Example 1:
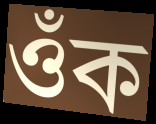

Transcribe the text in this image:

ওঁক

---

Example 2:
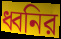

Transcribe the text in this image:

ধ্বনির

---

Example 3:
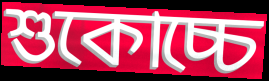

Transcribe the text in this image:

শুকোচ্চে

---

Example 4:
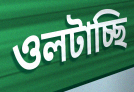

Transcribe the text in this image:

ওলটাচ্ছি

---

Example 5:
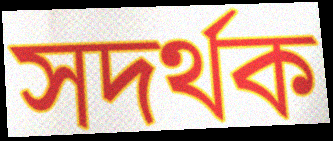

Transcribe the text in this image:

সদর্থক